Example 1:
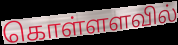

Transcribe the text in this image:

கொள்ளளவில்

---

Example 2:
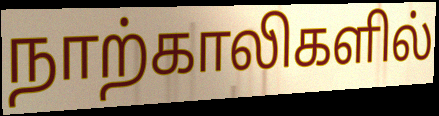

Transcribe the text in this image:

நாற்காலிகளில்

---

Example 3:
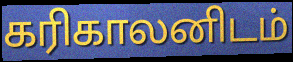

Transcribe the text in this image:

கரிகாலனிடம்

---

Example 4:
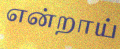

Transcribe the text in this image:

என்றாய்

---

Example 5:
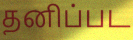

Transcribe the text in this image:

தனிப்பட